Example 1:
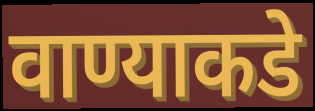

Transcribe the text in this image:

वाण्याकडे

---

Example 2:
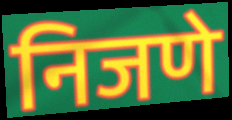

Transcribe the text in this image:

निजणे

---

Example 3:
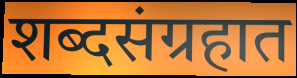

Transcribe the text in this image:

शब्दसंग्रहात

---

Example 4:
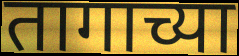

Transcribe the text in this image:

तागाच्या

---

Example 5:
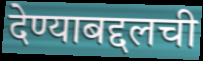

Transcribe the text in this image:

देण्याबद्दलची